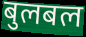
बुलबल